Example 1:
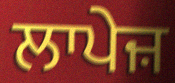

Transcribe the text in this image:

ਲਾਪੇਜ਼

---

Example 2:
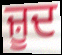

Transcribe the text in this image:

ਜ਼ੂਦ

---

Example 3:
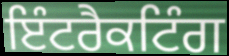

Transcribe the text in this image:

ਇੰਟਰੈਕਟਿੰਗ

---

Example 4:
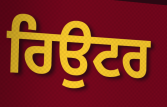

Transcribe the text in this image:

ਰਿਉਟਰ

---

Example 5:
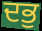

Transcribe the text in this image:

ਦਭੁ